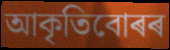
আকৃতিবোৰৰ